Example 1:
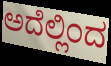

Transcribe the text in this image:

ಅದೆಲ್ಲಿಂದ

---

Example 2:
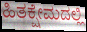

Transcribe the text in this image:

ಹಿತಕ್ಷೇಮದಲ್ಲಿ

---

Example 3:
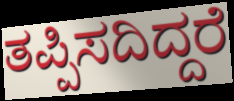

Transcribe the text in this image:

ತಪ್ಪಿಸದಿದ್ದರೆ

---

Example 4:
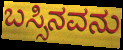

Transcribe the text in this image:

ಬಸ್ಸಿನವನು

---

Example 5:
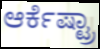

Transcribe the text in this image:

ಆರ್ಕೆಷ್ಟ್ರಾ